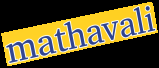
mathavali